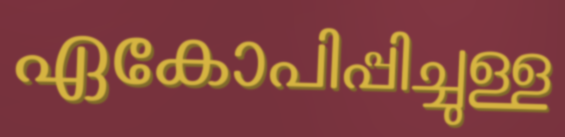
ഏകോപിപ്പിച്ചുള്ള